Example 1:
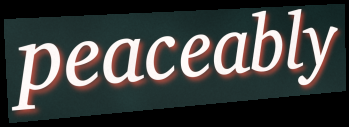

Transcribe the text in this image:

peaceably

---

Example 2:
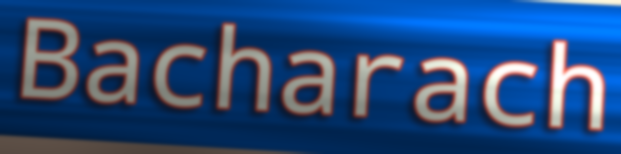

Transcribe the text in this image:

Bacharach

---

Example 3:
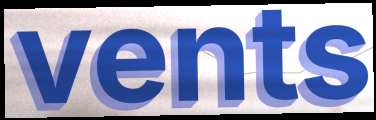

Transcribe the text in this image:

vents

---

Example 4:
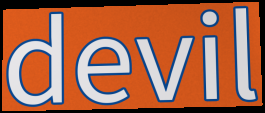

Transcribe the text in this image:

devil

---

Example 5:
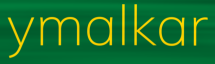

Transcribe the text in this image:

ymalkar